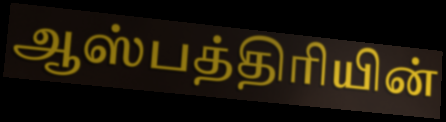
ஆஸ்பத்திரியின்